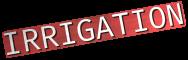
IRRIGATION